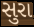
સુરા